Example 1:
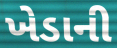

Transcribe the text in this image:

ખેડાની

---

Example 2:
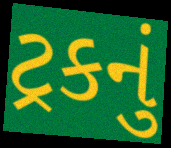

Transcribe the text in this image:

ટ્રકનું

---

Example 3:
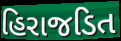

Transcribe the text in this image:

હિરાજડિત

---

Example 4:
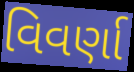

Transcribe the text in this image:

વિવર્ણા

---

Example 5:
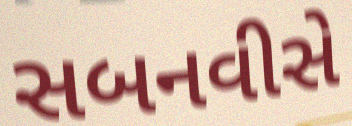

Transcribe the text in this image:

સબનવીસે